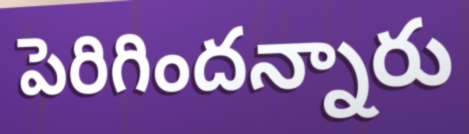
పెరిగిందన్నారు